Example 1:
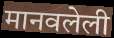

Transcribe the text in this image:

मानवलेली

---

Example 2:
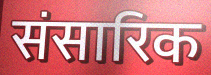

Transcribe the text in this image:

संसारिक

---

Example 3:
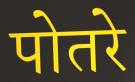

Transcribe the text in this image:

पोतरे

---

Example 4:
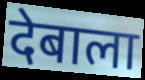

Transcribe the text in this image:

देबाला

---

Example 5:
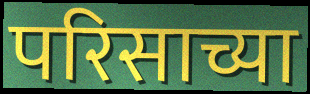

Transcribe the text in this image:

परिसाच्या